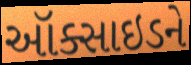
ઑક્સાઇડને